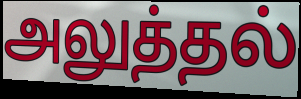
அலுத்தல்